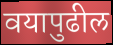
वयापुढील